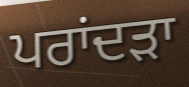
ਪਰਾਂਦੜਾ